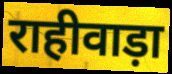
राहीवाड़ा